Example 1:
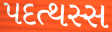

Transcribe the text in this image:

પદત્થસ્સ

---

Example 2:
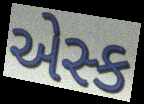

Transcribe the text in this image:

એસ્ક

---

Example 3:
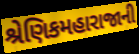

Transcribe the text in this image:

શ્રેણિકમહારાજાની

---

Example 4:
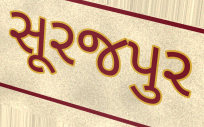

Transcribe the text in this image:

સૂરજપુર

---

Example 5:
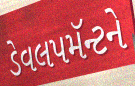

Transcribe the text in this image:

ડેવલપમૅન્ટને